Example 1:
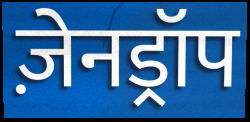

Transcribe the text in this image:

ज़ेनड्रॉप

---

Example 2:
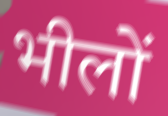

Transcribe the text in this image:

भीलों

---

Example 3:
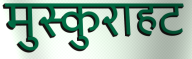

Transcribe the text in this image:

मुस्कुराहट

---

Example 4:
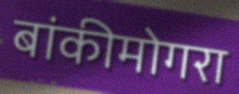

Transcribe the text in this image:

बांकीमोगरा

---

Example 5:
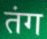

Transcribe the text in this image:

तंग